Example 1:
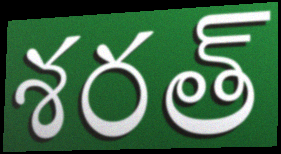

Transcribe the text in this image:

శరత్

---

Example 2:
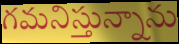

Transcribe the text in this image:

గమనిస్తున్నాను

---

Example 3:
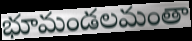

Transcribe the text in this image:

భూమండలమంతా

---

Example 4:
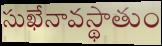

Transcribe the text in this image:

సుఖేనావస్థాతుం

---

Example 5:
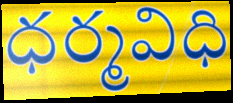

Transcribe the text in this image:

ధర్మవిధి